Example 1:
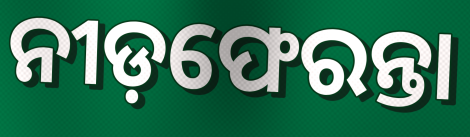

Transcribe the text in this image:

ନୀଡ଼ଫେରନ୍ତା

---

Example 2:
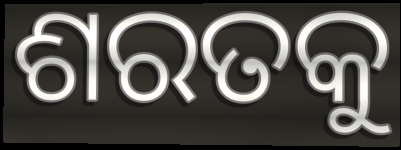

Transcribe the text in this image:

ଶରତକୁ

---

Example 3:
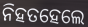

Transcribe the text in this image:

ନିହତହେଲେ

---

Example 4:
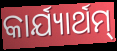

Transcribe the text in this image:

କାର୍ଯ୍ୟାର୍ଥମ୍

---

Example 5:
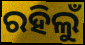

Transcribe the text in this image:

ରହିଲୁଁ